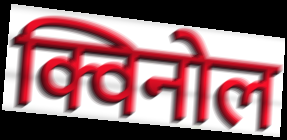
क्विनोल